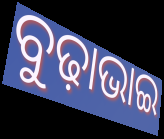
ବୁଢ଼ାଭାଇ